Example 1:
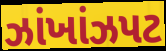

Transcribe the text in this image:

ઝાંખાંઝપટ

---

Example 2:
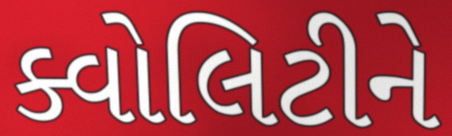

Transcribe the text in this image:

ક્વોલિટીને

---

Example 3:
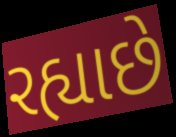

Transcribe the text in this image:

રહ્યાછે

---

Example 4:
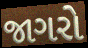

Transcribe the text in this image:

જાગરો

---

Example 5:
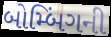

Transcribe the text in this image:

બોમ્બિંગની